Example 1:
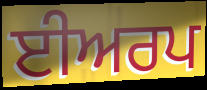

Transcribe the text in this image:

ਈਅਰਪ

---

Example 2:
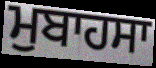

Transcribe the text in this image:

ਮੁਬਾਹਸਾ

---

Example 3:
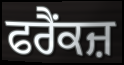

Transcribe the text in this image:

ਫਰੈਂਕਜ਼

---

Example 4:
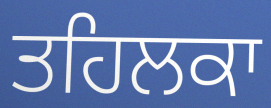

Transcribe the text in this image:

ਤਹਿਲਕਾ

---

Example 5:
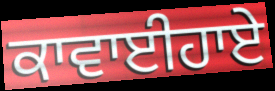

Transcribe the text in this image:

ਕਾਵਾਈਹਾਏ